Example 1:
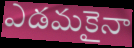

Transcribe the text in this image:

ఎడమకైనా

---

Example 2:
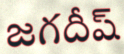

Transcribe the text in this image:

జగదీష్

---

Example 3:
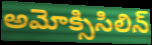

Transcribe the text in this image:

అమోక్సిసిలిన్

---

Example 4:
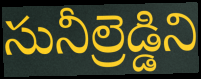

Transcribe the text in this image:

సునీల్రెడ్డిని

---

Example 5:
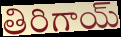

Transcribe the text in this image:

తిరిగాయ్